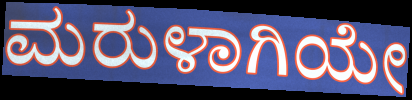
ಮರುಳಾಗಿಯೇ